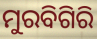
ମୁରବିଗିରି